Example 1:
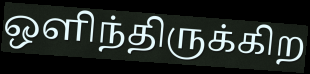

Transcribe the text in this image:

ஒளிந்திருக்கிற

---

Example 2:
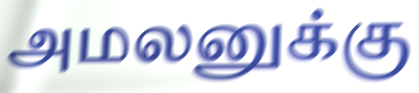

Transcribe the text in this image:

அமலனுக்கு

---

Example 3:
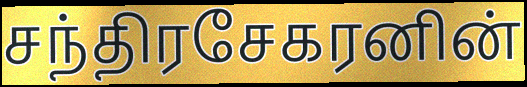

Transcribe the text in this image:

சந்திரசேகரனின்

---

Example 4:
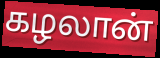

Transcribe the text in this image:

கழலான்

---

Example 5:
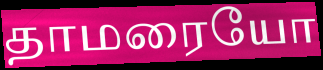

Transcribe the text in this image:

தாமரையோ